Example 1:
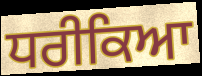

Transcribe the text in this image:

ਧਰੀਕਿਆ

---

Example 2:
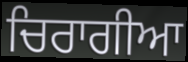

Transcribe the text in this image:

ਚਿਰਾਗੀਆ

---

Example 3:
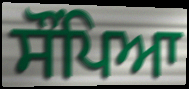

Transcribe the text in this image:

ਸੌਂਪਿਆ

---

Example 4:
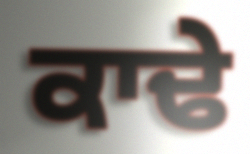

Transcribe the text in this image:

ਕਾਢੇ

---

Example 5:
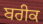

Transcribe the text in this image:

ਬਰੀਕ